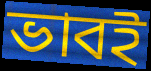
ভাবই